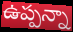
ఉప్పన్నా